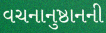
વચનાનુષ્ઠાનની